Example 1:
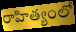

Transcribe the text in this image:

రాహిత్యంలో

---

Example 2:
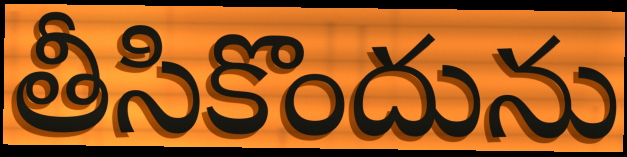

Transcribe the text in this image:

తీసికొందును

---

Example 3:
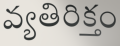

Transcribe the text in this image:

వ్యతిరిక్తం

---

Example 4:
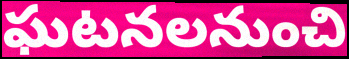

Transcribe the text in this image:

ఘటనలనుంచి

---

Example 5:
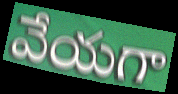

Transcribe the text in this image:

వేయగా